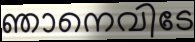
ഞാനെവിടേ